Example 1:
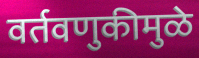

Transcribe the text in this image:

वर्तवणुकीमुळे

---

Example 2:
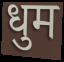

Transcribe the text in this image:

धुम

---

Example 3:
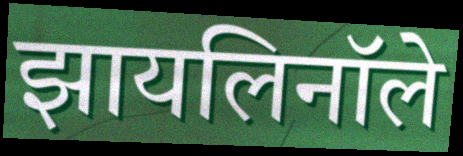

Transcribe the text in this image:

झायलिनॉले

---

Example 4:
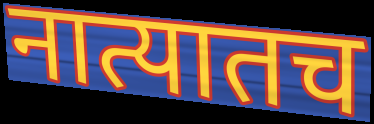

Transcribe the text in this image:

नात्यातच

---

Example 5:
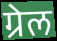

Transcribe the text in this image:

ग्रेल